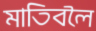
মাতিবলৈ